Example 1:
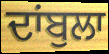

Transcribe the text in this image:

ਦਾਂਬੁਲਾ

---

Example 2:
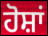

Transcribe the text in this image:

ਹੋਸ਼ਾਂ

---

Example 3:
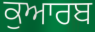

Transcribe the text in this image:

ਕੁਆਰਬ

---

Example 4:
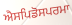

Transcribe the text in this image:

ਐਸਪਿਡੋਸਪਰਮਾ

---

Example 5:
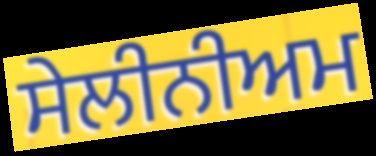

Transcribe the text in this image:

ਸੇਲੀਨੀਅਮ